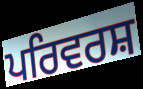
ਪਰਿਵਰਸ਼